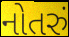
નોતરું